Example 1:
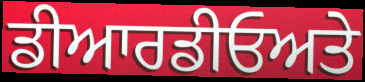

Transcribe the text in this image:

ਡੀਆਰਡੀਓਅਤੇ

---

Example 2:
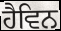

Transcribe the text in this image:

ਹੈਵਿਨ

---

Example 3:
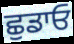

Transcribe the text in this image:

ਛੁਡਾਓ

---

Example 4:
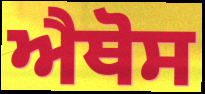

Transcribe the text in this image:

ਐਥੋਸ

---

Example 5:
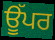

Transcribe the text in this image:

ਊੱਪਰ